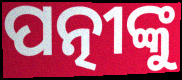
ପତ୍ନୀଙ୍କୁ